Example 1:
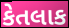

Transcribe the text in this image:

કેતલાક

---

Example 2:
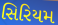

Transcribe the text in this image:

સિરિયમ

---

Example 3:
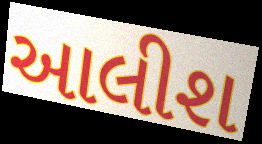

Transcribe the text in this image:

આલીશ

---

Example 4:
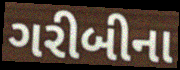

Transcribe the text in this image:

ગરીબીના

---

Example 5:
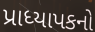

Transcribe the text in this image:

પ્રાધ્યાપકનો